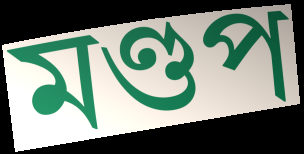
মণ্ডপ